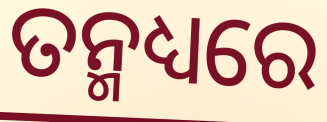
ତନ୍ମଧ୍ୟରେ